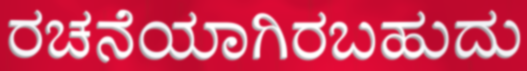
ರಚನೆಯಾಗಿರಬಹುದು